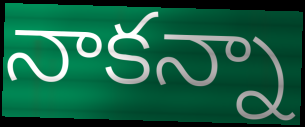
నాకన్నా